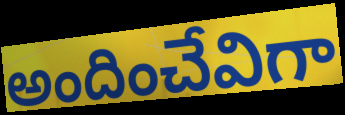
అందించేవిగా